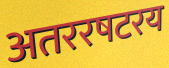
अतररषटरय